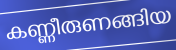
കണ്ണീരുണങ്ങിയ